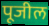
पूजील